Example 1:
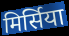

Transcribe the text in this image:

मिर्सिया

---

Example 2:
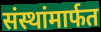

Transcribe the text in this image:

संस्थांमार्फत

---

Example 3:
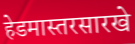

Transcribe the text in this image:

हेडमास्तरसारखे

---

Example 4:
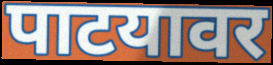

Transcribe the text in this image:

पाटयावर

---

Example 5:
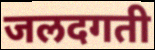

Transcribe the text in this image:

जलदगती